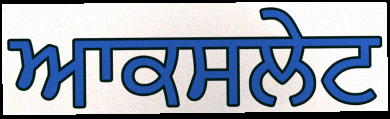
ਆਕਸਲੇਟ